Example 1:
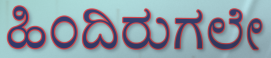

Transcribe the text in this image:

ಹಿಂದಿರುಗಲೇ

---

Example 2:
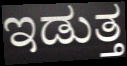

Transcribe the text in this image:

ಇಡುತ್ತ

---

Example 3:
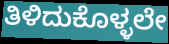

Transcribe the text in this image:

ತಿಳಿದುಕೊಳ್ಳಲೇ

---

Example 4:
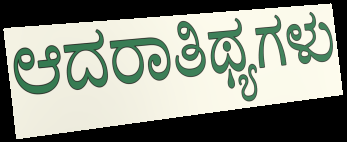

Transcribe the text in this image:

ಆದರಾತಿಥ್ಯಗಳು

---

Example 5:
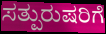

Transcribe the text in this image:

ಸತ್ಪುರುಷರಿಗೆ